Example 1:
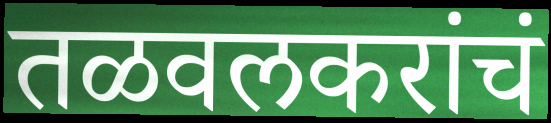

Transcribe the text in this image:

तळवलकरांचं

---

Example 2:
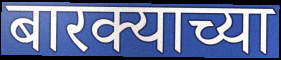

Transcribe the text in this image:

बारक्याच्या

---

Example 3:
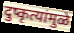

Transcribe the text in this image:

दुष्कृत्यांमुळे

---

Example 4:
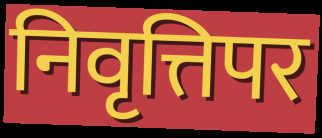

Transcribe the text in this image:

निवृत्तिपर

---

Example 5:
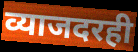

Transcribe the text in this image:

व्याजदरही